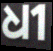
ଧୀ